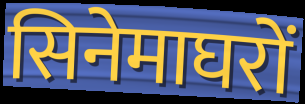
सिनेमाघरों